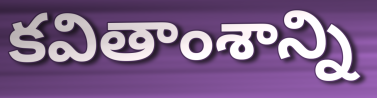
కవితాంశాన్ని